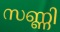
സണ്ണി